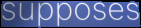
supposes